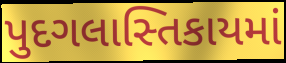
પુદગલાસ્તિકાયમાં